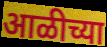
आळीच्या